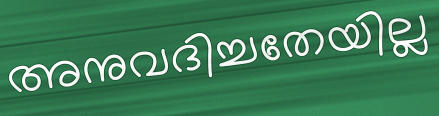
അനുവദിച്ചതേയില്ല